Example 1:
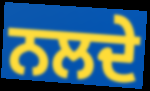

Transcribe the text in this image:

ਨਲਦੇ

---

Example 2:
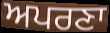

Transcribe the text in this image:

ਅਪਰਣਾ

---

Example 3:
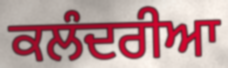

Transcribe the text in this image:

ਕਲੰਦਰੀਆ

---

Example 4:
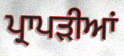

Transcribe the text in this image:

ਪ੍ਰਾਪੜੀਆਂ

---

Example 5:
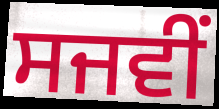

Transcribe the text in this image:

ਸਜਵੀਂ